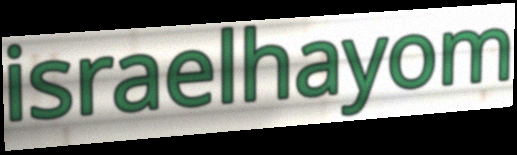
israelhayom